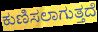
ಕುಣಿಸಲಾಗುತ್ತದೆ